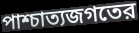
পাশ্চাত্যজগতের